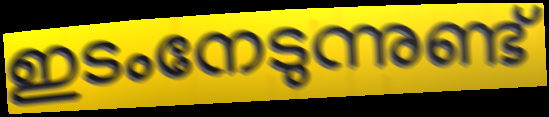
ഇടംനേടുന്നുണ്ട്